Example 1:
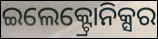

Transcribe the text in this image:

ଇଲେକ୍ଟ୍ରୋନିକ୍ସର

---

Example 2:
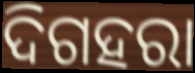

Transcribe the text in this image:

ଦିଗହରା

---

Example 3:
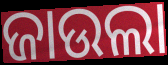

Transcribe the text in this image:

ଜାଉଲା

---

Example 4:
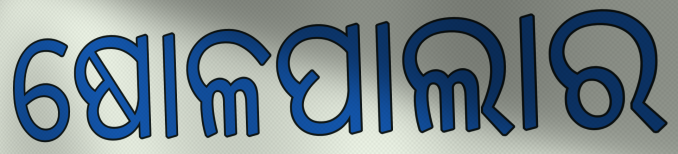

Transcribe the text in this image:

ଷୋଳପାଲାର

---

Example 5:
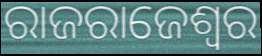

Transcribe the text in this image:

ରାଜରାଜେଶ୍ଵର